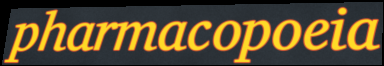
pharmacopoeia